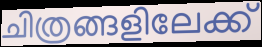
ചിത്രങ്ങളിലേക്ക്